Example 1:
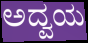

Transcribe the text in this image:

ಅದ್ವಯ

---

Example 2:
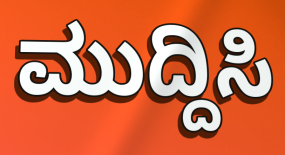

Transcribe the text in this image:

ಮುದ್ದಿಸಿ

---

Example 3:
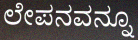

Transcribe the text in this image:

ಲೇಪನವನ್ನೂ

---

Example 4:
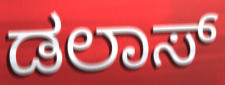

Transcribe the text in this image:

ಡಲಾಸ್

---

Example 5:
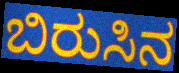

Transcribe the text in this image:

ಬಿರುಸಿನ